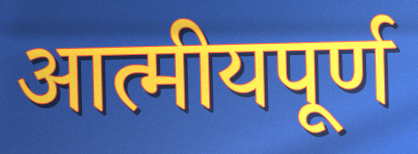
आत्मीयपूर्ण